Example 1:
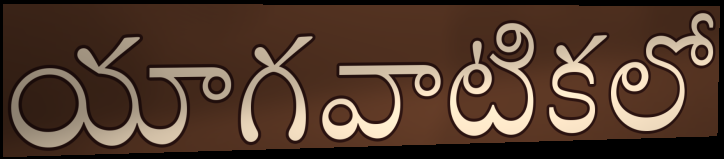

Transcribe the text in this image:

యాగవాటికలో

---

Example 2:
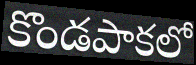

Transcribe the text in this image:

కొండపాకలో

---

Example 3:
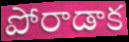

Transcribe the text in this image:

పోరాడాక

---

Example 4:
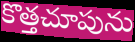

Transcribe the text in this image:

కొత్తచూపును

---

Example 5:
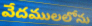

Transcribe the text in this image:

వేదములలోను